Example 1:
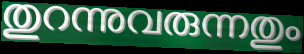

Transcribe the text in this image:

തുറന്നുവരുന്നതും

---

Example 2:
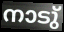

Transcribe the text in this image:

നാടു്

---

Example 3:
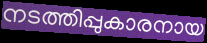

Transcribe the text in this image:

നടത്തിപ്പുകാരനായ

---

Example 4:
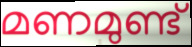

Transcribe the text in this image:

മണമുണ്ട്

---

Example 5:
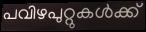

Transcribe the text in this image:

പവിഴപുറ്റുകൾക്ക്